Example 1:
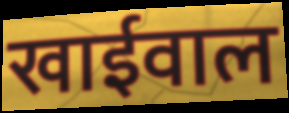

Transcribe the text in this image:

खाईवाल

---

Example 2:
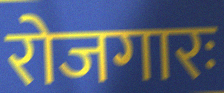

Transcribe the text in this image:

रोजगारः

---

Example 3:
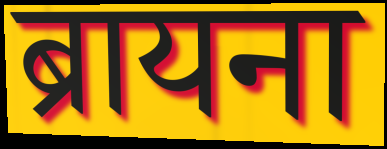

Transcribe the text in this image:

ब्रायना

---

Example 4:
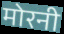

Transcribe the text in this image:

मोरनी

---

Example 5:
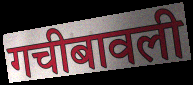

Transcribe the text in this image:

गचीबावली